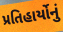
પ્રતિહાર્યોનું